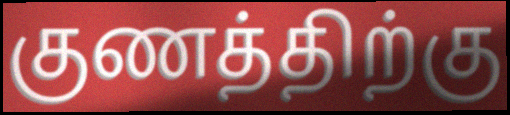
குணத்திற்கு